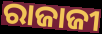
ରାଜାଜୀ